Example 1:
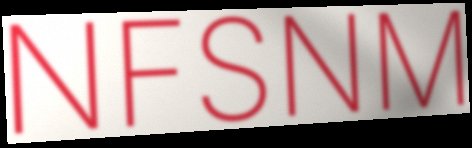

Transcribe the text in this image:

NFSNM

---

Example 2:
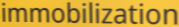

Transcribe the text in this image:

immobilization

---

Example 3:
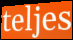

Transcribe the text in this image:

teljes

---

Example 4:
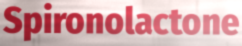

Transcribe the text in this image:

Spironolactone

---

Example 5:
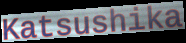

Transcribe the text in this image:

Katsushika